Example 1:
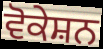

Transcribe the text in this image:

ਵੋਕੇਸ਼ਨ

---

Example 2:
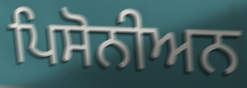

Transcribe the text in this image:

ਪਿਸੋਨੀਅਨ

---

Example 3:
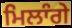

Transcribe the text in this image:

ਮਿਲਾੰਗੇ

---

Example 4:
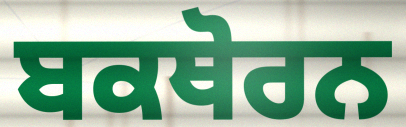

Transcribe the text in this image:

ਬਕਥੋਰਨ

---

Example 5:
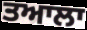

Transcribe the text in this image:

ਤਆਲਾ